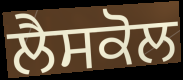
ਲੈਸਕੋਲ